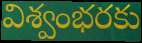
విశ్వంభరకు